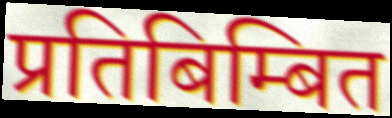
प्रतिबिम्बित